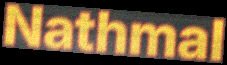
Nathmal